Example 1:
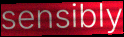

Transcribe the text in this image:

sensibly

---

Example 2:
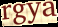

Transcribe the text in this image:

rgya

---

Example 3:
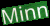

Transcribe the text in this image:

Minn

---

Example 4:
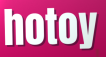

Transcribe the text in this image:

hotoy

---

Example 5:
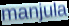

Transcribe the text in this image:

manjula